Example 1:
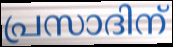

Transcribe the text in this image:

പ്രസാദിന്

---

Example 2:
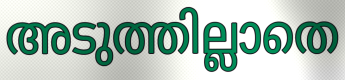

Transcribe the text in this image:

അടുത്തില്ലാതെ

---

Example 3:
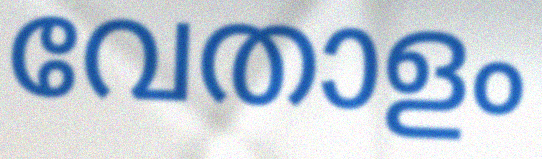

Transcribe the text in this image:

വേതാളം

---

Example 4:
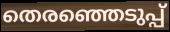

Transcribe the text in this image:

തെരഞ്ഞെടുപ്പ്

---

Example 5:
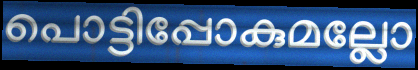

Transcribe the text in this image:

പൊട്ടിപ്പോകുമല്ലോ